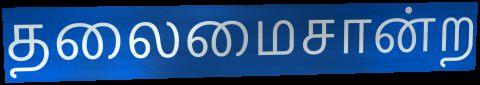
தலைமைசான்ற